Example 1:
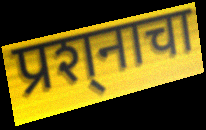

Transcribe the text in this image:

प्रश्नाचा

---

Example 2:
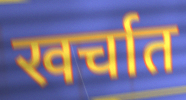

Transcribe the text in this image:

खर्चात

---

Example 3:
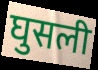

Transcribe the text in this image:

घुसली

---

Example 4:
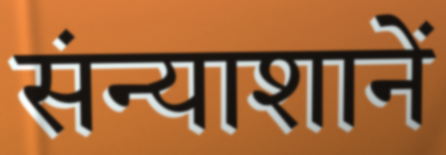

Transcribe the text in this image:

संन्याशानें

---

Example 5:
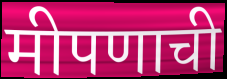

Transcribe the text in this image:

मीपणाची